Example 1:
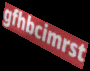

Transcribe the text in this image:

gfhbcimrst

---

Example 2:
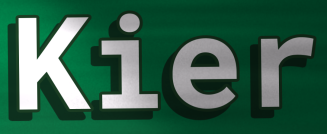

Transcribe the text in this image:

Kier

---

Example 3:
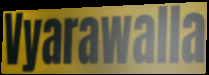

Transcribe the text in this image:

Vyarawalla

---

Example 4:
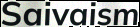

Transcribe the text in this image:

Saivaism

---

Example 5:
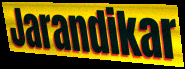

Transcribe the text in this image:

Jarandikar